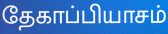
தேகாப்பியாசம்